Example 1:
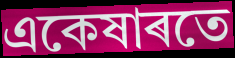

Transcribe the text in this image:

একেষাৰতে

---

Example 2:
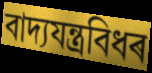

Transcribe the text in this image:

বাদ্যযন্ত্ৰবিধৰ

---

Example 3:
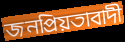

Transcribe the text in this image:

জনপ্ৰিয়তাবাদী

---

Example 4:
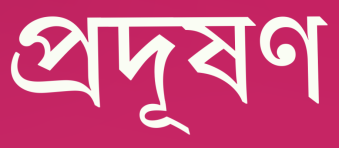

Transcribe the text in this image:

প্ৰদূষণ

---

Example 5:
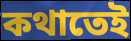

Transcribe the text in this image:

কথাতেই